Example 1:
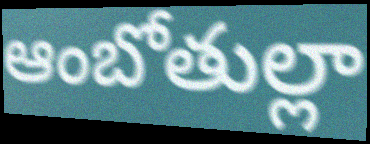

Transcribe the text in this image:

ఆంబోతుల్లా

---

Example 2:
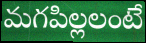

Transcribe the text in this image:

మగపిల్లలంటే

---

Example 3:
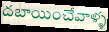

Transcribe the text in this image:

దబాయించేవాళ్ళ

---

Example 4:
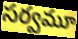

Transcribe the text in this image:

సర్వమూ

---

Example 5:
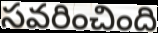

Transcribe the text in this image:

సవరించింది